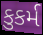
કુકર્મ